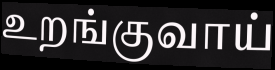
உறங்குவாய்